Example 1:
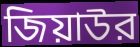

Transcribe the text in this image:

জিয়াউর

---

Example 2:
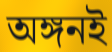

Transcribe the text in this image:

অঙ্গনই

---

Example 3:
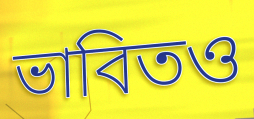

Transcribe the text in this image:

ভাবিতও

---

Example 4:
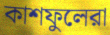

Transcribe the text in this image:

কাশফুলেরা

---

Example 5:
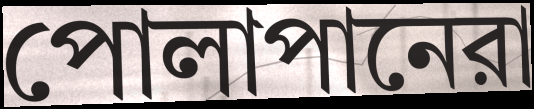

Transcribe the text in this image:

পোলাপানেরা